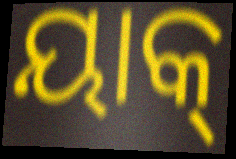
ୟାକ୍